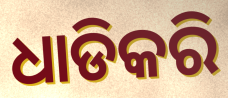
ଧାଡିକରି